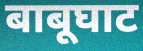
बाबूघाट